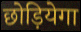
छोड़ियेगा